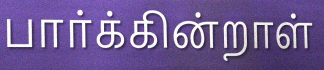
பார்க்கின்றாள்